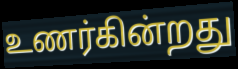
உணர்கின்றது